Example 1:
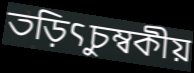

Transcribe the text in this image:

তড়িৎচুম্বকীয়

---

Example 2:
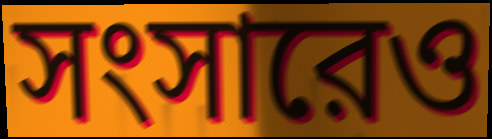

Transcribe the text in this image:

সংসারেও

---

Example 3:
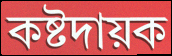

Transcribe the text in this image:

কষ্টদায়ক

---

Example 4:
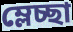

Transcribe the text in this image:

ম্লেচ্ছা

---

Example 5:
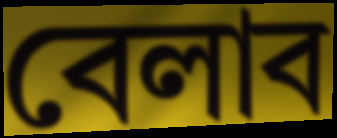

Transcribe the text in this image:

বেলাব